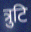
त्रुटि